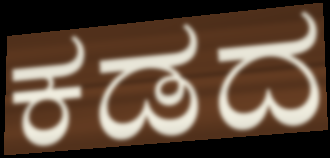
ಕಡದ